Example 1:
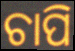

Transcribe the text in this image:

ଚାପି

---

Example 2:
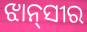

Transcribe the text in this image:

ଝାନ୍‌ସୀର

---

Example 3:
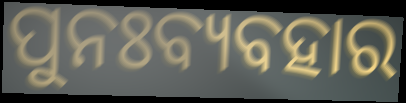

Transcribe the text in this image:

ପୁନଃବ୍ୟବହାର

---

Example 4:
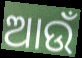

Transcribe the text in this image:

ଆଉଁ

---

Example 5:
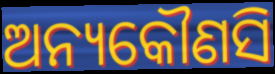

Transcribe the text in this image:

ଅନ୍ୟକୌଣସି